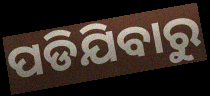
ପଡିଯିବାରୁ